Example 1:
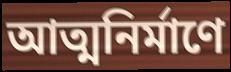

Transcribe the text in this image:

আত্মনির্মাণে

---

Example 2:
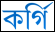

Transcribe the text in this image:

কর্গি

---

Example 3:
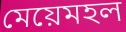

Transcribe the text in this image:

মেয়েমহল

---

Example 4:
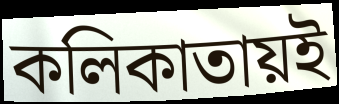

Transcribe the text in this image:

কলিকাতায়ই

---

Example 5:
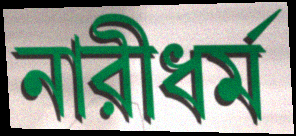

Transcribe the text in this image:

নারীধর্ম